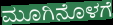
ಮೂಗಿನೊಳಗೆ